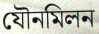
যৌনমিলন